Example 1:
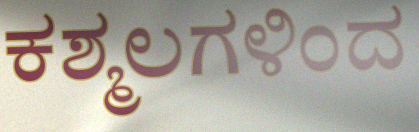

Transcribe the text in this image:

ಕಶ್ಮಲಗಳಿಂದ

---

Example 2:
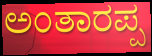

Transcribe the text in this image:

ಅಂತಾರಪ್ಪ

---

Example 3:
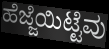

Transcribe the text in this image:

ಹೆಜ್ಜೆಯಿಟ್ಟೆವು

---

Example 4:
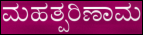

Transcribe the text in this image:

ಮಹತ್ಪರಿಣಾಮ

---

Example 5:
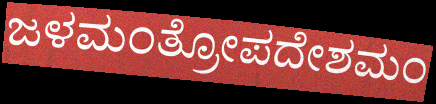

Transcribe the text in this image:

ಜಳಮಂತ್ರೋಪದೇಶಮಂ